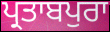
ਪ੍ਰਤਾਬਪੁਰਾ